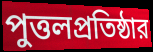
পুত্তলপ্রতিষ্ঠার